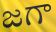
జగా